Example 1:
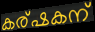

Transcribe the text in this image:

കര്ഷകന്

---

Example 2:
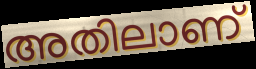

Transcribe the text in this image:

അതിലാണ്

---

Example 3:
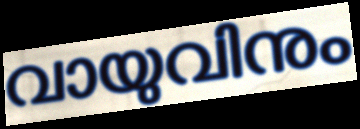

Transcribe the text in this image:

വായുവിനും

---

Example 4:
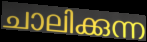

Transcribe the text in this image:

ചാലിക്കുന്ന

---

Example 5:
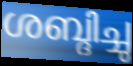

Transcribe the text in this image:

ശബ്ദിച്ചു